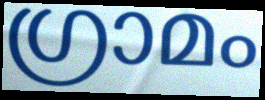
ഗ്രാമം